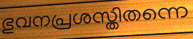
ഭുവനപ്രശസ്തിതന്നെ